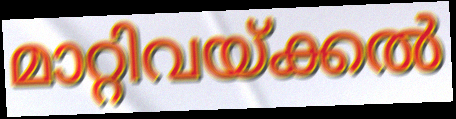
മാറ്റിവയ്ക്കൽ